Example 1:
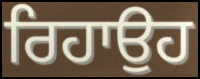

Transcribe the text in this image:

ਰਿਹਾਉਹ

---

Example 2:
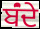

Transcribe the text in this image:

ਬਂੰਦੇ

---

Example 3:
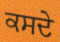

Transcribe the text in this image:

ਕਸਦੇ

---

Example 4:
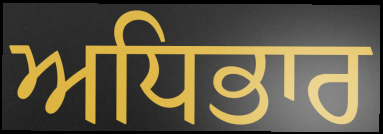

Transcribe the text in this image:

ਅਧਿਭਾਰ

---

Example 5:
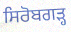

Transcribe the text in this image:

ਸਿਰੋਬਗੜ੍ਹ